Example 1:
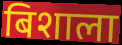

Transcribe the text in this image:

बिशाला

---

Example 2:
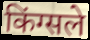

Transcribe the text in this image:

किंग्सले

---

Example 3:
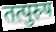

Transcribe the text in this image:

तत्पुरुष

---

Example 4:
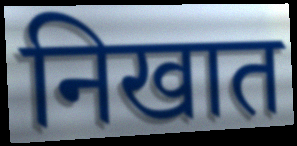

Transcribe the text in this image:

निखात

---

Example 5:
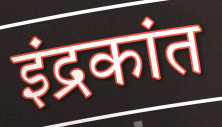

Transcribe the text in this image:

इंद्रकांत